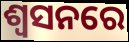
ଶ୍ଵସନରେ